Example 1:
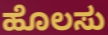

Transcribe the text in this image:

ಹೊಲಸು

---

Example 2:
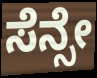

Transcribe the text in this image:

ಸೆನ್ಸೇ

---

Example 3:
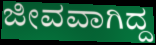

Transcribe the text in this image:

ಜೀವವಾಗಿದ್ದ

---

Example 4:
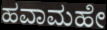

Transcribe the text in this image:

ಹವಾಮಹೇ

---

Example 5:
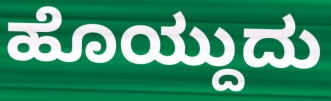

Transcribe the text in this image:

ಹೊಯ್ದುದು